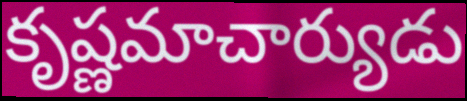
కృష్ణమాచార్యుడు